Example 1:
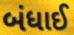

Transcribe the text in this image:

બંધાઈ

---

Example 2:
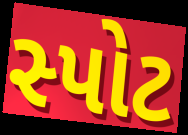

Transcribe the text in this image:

સ્પોટ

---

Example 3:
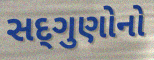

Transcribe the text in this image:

સદ્‌ગુણોનો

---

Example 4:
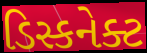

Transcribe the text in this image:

ડિસ્કનેક્ટ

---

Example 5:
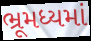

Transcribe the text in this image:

ભ્રૂમધ્યમાં